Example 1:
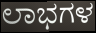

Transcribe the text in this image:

ಲಾಭಗಳ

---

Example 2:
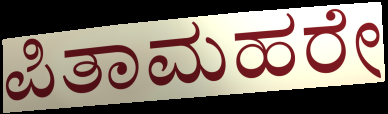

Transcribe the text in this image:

ಪಿತಾಮಹರೇ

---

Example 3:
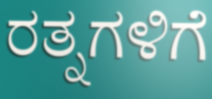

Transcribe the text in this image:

ರತ್ನಗಳಿಗೆ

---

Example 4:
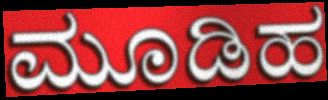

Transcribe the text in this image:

ಮೂಡಿಹ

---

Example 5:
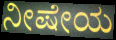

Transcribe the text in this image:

ನೀಷೇಯ